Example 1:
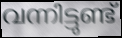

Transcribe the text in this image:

വന്നിട്ടുണ്ട്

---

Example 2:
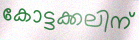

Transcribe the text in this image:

കോട്ടക്കലിന്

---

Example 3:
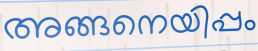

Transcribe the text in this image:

അങ്ങനെയിപ്പം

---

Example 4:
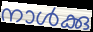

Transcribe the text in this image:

നാൾക്കു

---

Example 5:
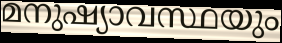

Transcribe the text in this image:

മനുഷ്യാവസ്ഥയും